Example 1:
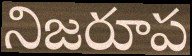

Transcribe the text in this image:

నిజరూప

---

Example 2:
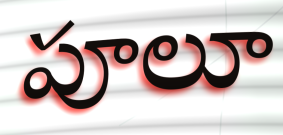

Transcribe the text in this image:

పూలూ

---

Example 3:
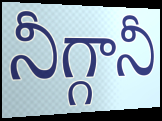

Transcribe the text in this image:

నీగ్గానీ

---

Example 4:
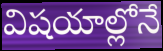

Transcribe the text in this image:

విషయాల్లోనే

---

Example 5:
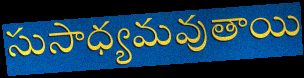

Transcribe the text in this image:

సుసాధ్యమవుతాయి